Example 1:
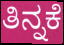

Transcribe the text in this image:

ತಿನ್ನಕೆ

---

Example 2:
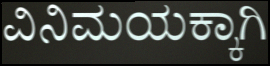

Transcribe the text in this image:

ವಿನಿಮಯಕ್ಕಾಗಿ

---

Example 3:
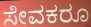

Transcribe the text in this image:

ಸೇವಕರೂ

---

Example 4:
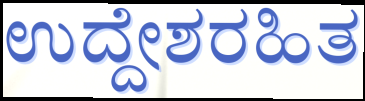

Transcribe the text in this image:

ಉದ್ದೇಶರಹಿತ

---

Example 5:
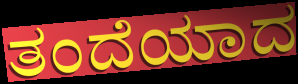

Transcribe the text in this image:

ತಂದೆಯಾದ